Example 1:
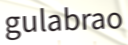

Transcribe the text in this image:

gulabrao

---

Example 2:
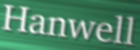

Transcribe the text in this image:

Hanwell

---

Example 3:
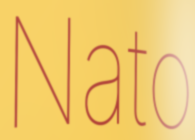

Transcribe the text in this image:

Nato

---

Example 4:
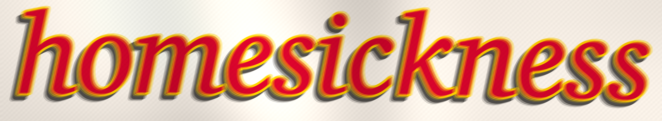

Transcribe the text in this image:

homesickness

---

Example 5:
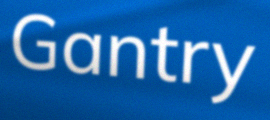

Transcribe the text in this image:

Gantry